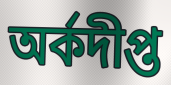
অর্কদীপ্ত